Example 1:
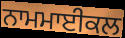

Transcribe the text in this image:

ਨਾਮਮਾਈਕਲ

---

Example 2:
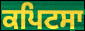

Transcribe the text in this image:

ਕਪਿਟਸਾ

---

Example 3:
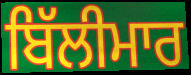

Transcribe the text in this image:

ਬਿੱਲੀਮਾਰ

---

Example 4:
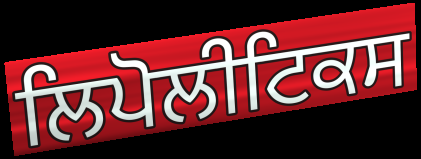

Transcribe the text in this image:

ਲਿਪੋਲੀਟਿਕਸ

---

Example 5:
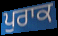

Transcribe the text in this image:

ਪੁਰਾਕ